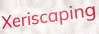
Xeriscaping